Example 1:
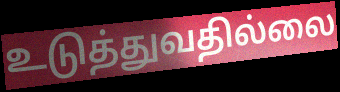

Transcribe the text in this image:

உடுத்துவதில்லை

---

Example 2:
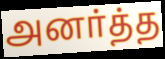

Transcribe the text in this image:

அனர்த்த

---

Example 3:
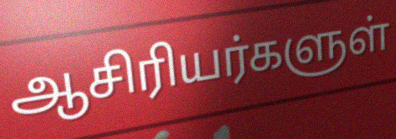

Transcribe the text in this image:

ஆசிரியர்களுள்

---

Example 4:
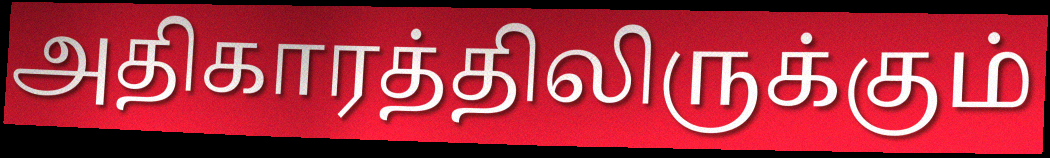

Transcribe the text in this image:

அதிகாரத்திலிருக்கும்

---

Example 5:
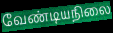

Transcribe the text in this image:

வேண்டியநிலை